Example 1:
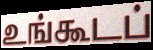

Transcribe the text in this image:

உங்கூடப்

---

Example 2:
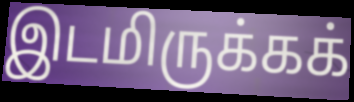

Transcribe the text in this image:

இடமிருக்கக்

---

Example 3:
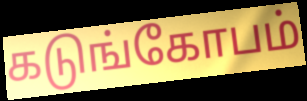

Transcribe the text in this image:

கடுங்கோபம்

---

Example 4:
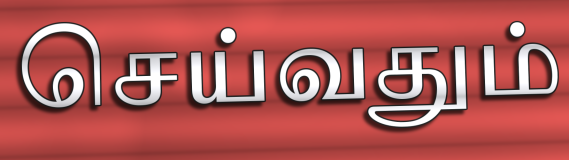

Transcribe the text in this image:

செய்வதும்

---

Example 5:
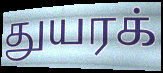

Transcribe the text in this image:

துயரக்